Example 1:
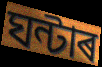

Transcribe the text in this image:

ঘন্টাৰ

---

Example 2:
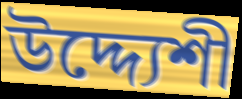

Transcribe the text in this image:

উদ্দ্যেশী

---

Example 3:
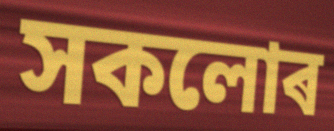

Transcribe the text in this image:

সকলোৰ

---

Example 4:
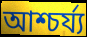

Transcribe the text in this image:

আশ্চৰ্য্য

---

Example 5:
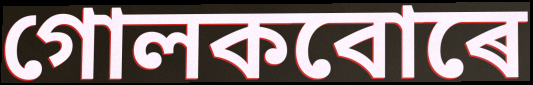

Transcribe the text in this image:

গোলকবোৰে